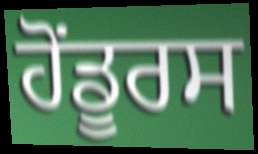
ਹੋਂਡੂਰਸ